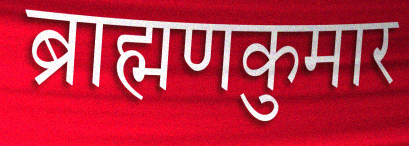
ब्राह्मणकुमार